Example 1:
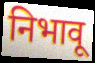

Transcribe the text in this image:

निभावू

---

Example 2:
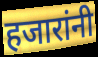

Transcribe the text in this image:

हजारांनी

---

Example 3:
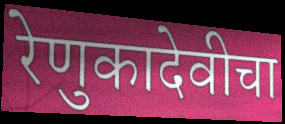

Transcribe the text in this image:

रेणुकादेवीचा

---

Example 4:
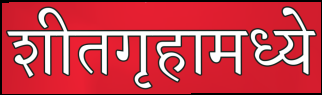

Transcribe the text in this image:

शीतगृहामध्ये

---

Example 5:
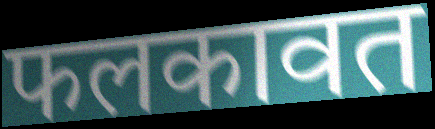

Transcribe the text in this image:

फलकावत